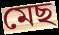
মেছ